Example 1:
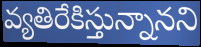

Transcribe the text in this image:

వ్యతిరేకిస్తున్నానని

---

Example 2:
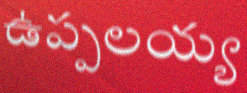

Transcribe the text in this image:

ఉప్పలయ్య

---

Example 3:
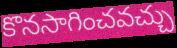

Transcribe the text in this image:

కొనసాగించవచ్చు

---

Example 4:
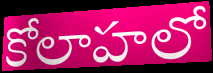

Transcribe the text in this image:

కోలాహలో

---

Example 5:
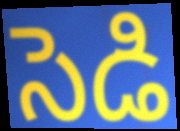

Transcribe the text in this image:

సెడి